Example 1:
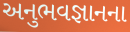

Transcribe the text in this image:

અનુભવજ્ઞાનના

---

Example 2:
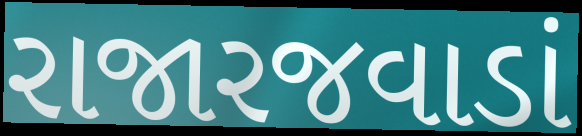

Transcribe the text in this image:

રાજારજવાડાં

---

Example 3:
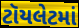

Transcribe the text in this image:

ટૉયલેટમાં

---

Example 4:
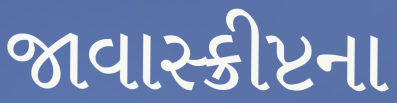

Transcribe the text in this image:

જાવાસ્ક્રીપ્ટના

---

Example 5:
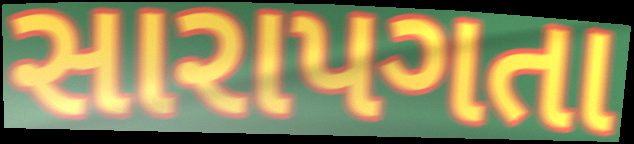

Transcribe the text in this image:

સારાપગતા